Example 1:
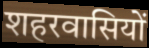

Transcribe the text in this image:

शहरवासियों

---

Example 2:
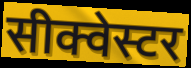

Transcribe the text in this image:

सीक्वेस्टर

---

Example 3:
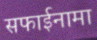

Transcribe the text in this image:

सफाईनामा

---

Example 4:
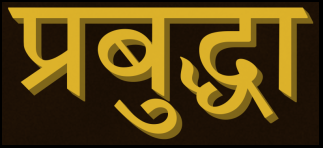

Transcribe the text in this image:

प्रबुद्धा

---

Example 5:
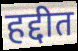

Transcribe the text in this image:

हद्दीत